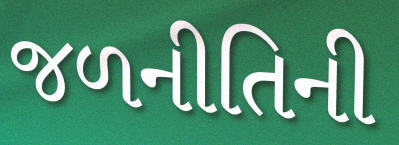
જળનીતિની